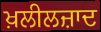
ਖ਼ਲੀਲਜ਼ਾਦ